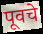
पूवचे